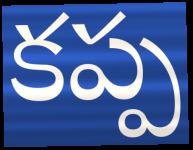
కప్ప